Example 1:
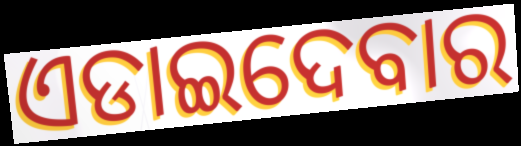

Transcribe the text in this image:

ଏଡାଇଦେବାର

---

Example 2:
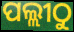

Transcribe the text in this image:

ପଲ୍ଲୀଠୁ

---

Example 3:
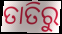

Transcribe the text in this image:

ତାତିରୁ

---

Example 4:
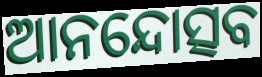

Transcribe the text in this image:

ଆନନ୍ଦୋତ୍ସବ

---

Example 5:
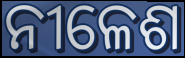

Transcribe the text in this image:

ନୀଳେଶ